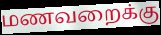
மணவறைக்கு